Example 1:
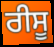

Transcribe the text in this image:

ਰੀਸੂ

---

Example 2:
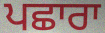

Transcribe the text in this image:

ਪਛਾਰਾ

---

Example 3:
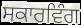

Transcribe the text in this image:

ਸਕਾਰਵਿੰਗ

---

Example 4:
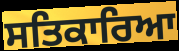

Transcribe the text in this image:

ਸਤਿਕਾਰਿਆ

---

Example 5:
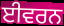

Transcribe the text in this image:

ਈਵਰਨ